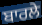
ਬਾਰਲੇ